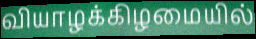
வியாழக்கிழமையில்